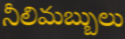
నీలిమబ్బులు